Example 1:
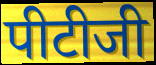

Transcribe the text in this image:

पीटीजी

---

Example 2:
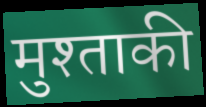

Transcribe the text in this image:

मुश्ताकी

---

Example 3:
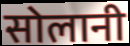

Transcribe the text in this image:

सोलानी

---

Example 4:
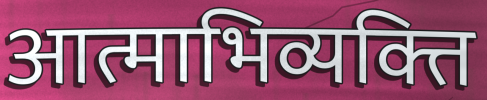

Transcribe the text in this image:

आत्माभिव्यक्ति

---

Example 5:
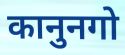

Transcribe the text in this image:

कानुनगो